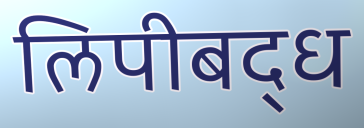
लिपीबद्ध